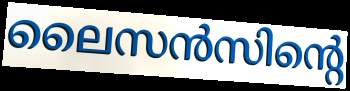
ലൈസൻസിന്റെ